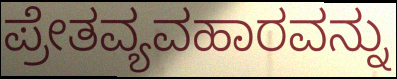
ಪ್ರೇತವ್ಯವಹಾರವನ್ನು